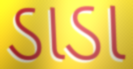
ડાડા